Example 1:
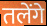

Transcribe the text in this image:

तलेंगे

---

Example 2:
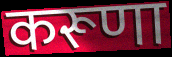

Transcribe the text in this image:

करूणा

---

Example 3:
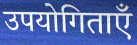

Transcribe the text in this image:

उपयोगिताएँ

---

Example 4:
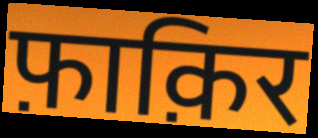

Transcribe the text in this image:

फ़ाक़िर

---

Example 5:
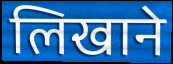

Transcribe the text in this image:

लिखाने